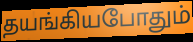
தயங்கியபோதும்